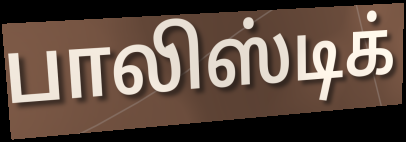
பாலிஸ்டிக்